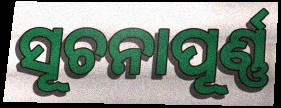
ସୂଚନାପୂର୍ଣ୍ଣ